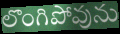
లొంగిపోవును